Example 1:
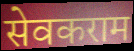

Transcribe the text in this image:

सेवकराम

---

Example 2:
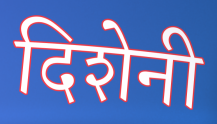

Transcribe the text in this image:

दिशेनी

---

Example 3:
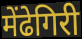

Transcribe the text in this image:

मेंढेगिरी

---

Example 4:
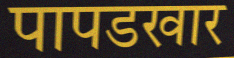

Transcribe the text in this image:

पापडखार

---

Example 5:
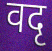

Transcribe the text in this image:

वदृ